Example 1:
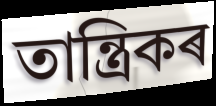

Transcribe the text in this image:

তান্ত্ৰিকৰ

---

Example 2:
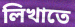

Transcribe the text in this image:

লিখাতে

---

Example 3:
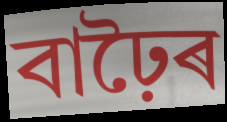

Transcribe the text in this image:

বাঢ়ৈৰ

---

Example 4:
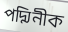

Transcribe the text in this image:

পদ্মিনীক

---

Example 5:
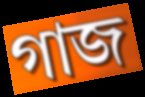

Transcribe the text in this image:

গাজ